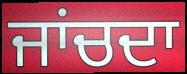
ਜਾਂਚਦਾ